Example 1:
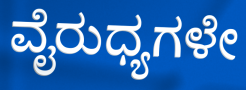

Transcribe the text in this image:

ವೈರುಧ್ಯಗಳೇ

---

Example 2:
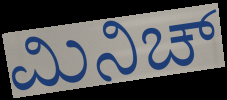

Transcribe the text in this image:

ಮಿನಿಚ್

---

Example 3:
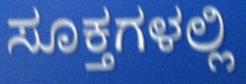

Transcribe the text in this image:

ಸೂಕ್ತಗಳಲ್ಲಿ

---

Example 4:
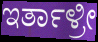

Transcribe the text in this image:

ಇರ್ತಾಳ್ರೀ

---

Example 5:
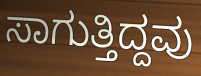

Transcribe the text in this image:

ಸಾಗುತ್ತಿದ್ದವು